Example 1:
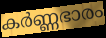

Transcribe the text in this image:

കർണ്ണഭാരം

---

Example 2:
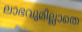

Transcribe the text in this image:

ലാഭവുമില്ലാതെ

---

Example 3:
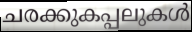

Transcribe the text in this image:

ചരക്കുകപ്പലുകൾ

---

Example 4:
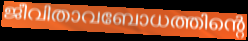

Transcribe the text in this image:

ജീവിതാവബോധത്തിന്റെ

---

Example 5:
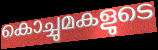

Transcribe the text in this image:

കൊച്ചുമകളുടെ